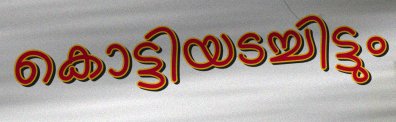
കൊട്ടിയടച്ചിട്ടും